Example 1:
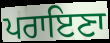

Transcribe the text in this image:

ਪਰਾਇਣਾ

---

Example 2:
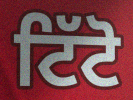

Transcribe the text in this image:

ਟਿੱਟੋ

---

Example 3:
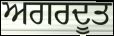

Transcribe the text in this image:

ਅਗਰਦੂਤ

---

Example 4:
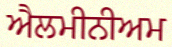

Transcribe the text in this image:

ਐਲਮੀਨੀਅਮ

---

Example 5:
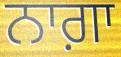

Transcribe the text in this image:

ਨਾਗ਼ਾ